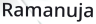
Ramanuja